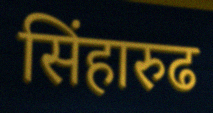
सिंहारुढ